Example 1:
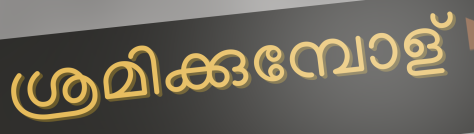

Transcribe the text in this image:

ശ്രമിക്കുമ്പോള്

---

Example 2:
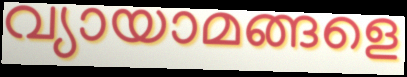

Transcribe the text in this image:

വ്യായാമങ്ങളെ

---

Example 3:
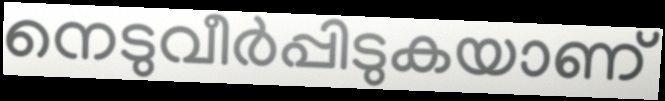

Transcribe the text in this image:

നെടുവീർപ്പിടുകയാണ്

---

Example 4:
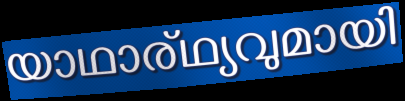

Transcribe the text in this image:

യാഥാര്ഥ്യവുമായി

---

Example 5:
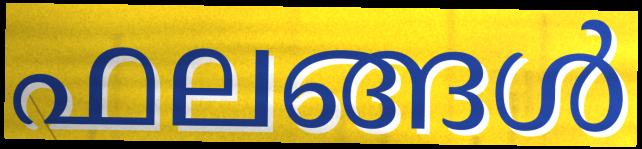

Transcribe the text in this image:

ഫലങ്ങൾ